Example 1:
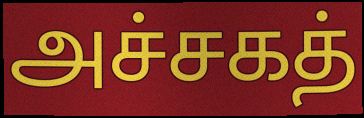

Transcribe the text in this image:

அச்சகத்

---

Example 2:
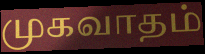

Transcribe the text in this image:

முகவாதம்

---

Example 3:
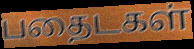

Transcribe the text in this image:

பதைடகள்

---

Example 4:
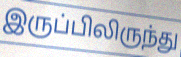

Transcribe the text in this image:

இருப்பிலிருந்து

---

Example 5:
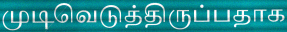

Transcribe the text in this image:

முடிவெடுத்திருப்பதாக